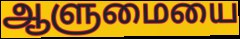
ஆளுமையை